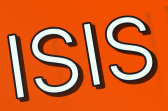
ISIS